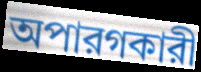
অপারগকারী